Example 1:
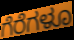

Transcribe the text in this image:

ಗೆರೆಗಳೂ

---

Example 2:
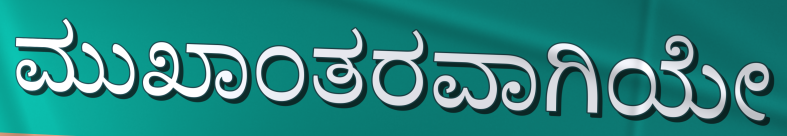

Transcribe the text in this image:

ಮುಖಾಂತರವಾಗಿಯೇ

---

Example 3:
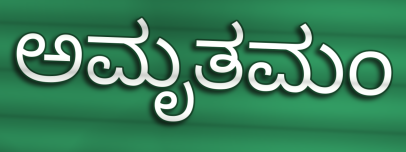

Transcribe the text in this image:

ಅಮೃತಮಂ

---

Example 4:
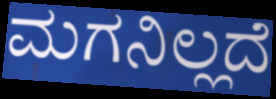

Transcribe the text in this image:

ಮಗನಿಲ್ಲದೆ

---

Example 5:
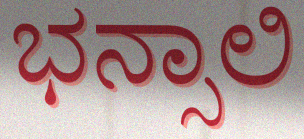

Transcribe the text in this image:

ಭನ್ಸಾಲಿ